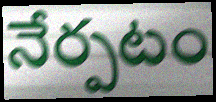
నేర్పటం